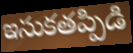
ఇసుకతప్పిడి